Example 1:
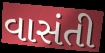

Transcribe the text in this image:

વાસંતી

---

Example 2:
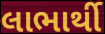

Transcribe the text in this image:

લાભાર્થી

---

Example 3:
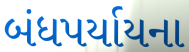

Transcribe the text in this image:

બંધપર્યાયના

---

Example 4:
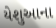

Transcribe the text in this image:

યેશુઆના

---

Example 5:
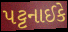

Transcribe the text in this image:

પટ્ટનાઈકે